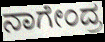
ನಾಗೇಂದ್ರ